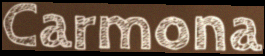
Carmona